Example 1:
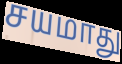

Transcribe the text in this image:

சயமாது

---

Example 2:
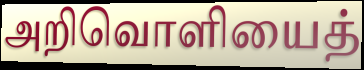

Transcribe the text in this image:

அறிவொளியைத்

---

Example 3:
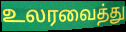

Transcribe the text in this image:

உலரவைத்து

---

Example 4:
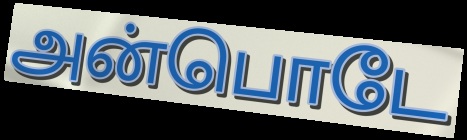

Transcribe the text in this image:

அன்பொடே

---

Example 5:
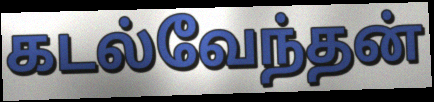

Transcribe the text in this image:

கடல்வேந்தன்